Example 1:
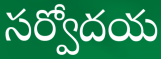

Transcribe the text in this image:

సర్వోదయ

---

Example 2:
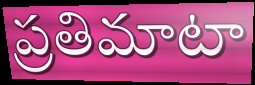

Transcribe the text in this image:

ప్రతిమాటా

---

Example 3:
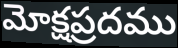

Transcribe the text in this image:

మోక్షప్రదము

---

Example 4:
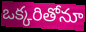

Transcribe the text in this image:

ఒక్కరితోనూ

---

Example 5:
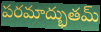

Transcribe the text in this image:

పరమాద్భుతమ్